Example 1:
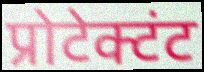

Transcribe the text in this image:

प्रोटेक्टंट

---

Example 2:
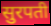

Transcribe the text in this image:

सुरपती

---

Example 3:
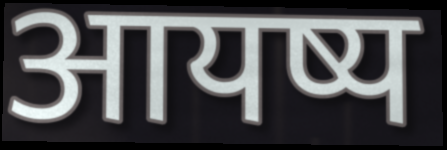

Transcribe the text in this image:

आयष्य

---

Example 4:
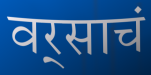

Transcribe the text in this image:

वर्साचं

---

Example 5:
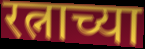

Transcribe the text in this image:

रत्नाच्या